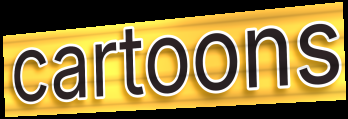
cartoons